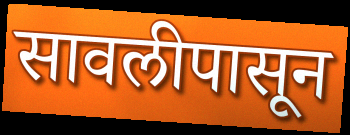
सावलीपासून